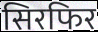
सिरफिर